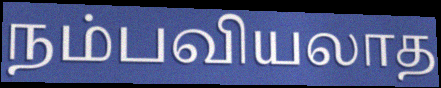
நம்பவியலாத